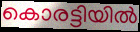
കൊരട്ടിയിൽ